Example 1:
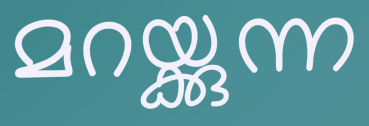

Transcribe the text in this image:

മറയ്ക്കുന്ന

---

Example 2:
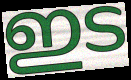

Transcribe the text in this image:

ഇട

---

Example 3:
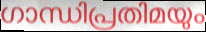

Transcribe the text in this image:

ഗാന്ധിപ്രതിമയും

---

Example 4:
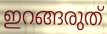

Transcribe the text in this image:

ഇറങ്ങരുത്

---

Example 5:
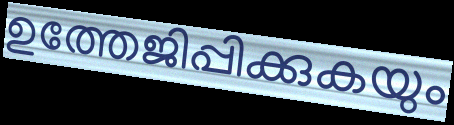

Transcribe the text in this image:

ഉത്തേജിപ്പിക്കുകയും